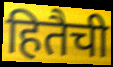
हितैची